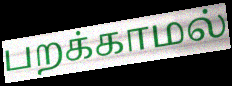
பறக்காமல்